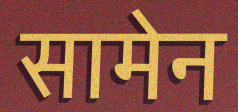
सामेन